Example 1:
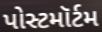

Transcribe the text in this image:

પોસ્ટમૉર્ટમ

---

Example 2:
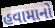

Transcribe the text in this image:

હવામાનો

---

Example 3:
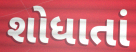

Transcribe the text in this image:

શોધાતાં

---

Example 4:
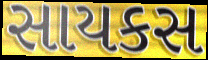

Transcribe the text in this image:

સાયકસ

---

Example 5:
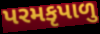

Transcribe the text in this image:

પરમકૃપાળુ